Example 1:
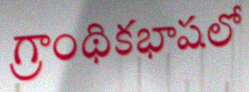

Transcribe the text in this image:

గ్రాంథికభాషలో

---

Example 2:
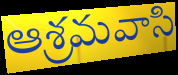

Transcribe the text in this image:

ఆశ్రమవాసి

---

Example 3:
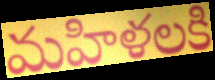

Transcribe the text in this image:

మహిళలకి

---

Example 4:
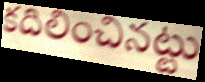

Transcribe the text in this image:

కదిలించినట్టు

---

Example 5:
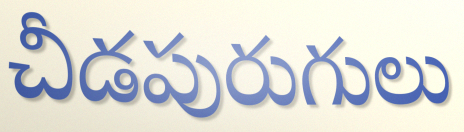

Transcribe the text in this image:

చీడపురుగులు